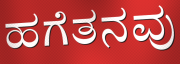
ಹಗೆತನವು